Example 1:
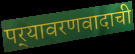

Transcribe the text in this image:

पर्यावरणवादाची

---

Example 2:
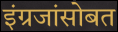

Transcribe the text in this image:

इंग्रजांसोबत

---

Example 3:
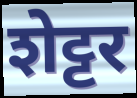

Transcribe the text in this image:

शेट्टर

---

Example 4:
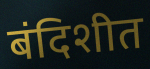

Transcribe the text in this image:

बंदिशीत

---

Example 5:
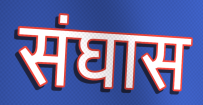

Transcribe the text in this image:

संघास